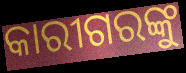
କାରୀଗରଙ୍କୁ